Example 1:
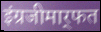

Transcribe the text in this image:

इंग्रजीमार्फत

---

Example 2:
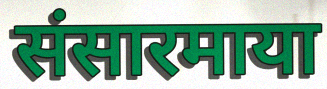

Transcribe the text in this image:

संसारमाया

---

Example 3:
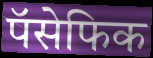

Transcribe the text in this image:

पॅसेफिक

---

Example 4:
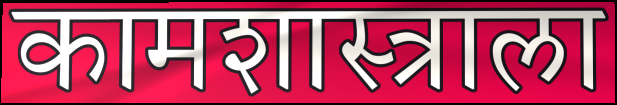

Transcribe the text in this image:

कामशास्त्राला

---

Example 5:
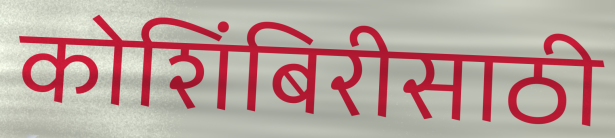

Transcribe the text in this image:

कोशिंबिरीसाठी